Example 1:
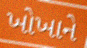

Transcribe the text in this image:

ખોખાને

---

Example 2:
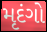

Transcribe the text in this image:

મૃદંગો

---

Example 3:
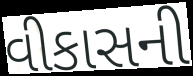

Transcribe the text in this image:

વીકાસની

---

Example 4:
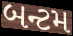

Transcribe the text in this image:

બન્ટમ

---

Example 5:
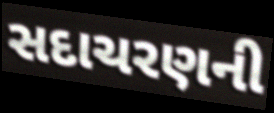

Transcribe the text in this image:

સદાચરણની